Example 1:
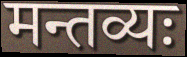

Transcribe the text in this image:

मन्तव्यः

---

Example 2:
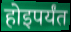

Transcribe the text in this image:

होइपर्यंत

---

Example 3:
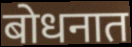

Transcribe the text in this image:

बोधनात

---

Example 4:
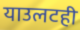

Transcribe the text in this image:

याउलटही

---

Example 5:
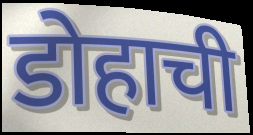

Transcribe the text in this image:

डोहाची